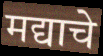
मद्याचे